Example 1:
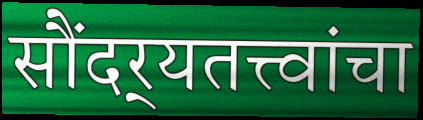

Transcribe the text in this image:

सौंदर्यतत्त्वांचा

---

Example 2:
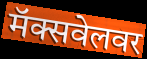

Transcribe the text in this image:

मॅक्सवेलवर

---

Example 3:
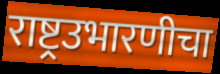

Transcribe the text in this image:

राष्ट्रउभारणीचा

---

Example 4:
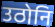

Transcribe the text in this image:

उठोनि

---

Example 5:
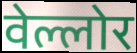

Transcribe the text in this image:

वेल्लोर